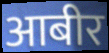
आबीर